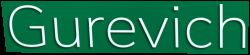
Gurevich